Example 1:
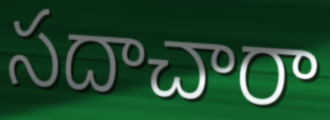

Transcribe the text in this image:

సదాచారా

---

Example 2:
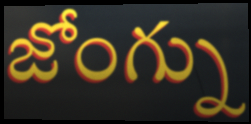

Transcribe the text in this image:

జోంగ్ను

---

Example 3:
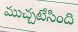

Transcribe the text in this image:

ముచ్చటేసింది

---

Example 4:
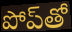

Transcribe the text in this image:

పోప్‌తో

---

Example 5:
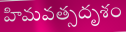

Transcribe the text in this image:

హిమవత్సదృశం